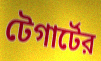
টেগার্টের